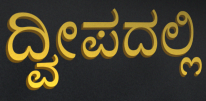
ದ್ವೀಪದಲ್ಲಿ